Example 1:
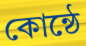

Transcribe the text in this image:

কোন্ঠে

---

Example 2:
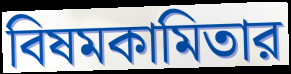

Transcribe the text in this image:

বিষমকামিতার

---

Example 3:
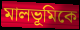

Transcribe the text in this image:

মালভূমিকে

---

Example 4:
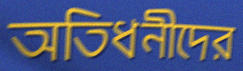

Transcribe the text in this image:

অতিধনীদের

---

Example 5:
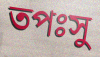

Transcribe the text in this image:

তপঃসু